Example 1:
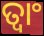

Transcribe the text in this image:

ତ୍ଵାଂ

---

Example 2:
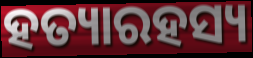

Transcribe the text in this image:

ହତ୍ୟାରହସ୍ୟ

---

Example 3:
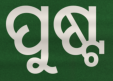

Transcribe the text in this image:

ପୁଷ୍ଟ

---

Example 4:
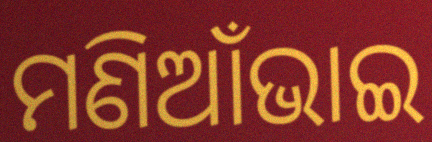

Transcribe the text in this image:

ମଣିଆଁଭାଇ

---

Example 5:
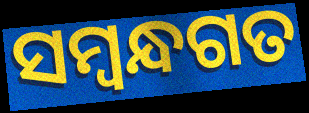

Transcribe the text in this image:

ସମ୍ବନ୍ଧଗତ